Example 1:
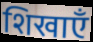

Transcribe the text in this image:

शिखाएँ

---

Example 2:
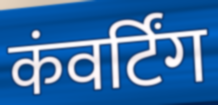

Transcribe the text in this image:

कंवर्टिंग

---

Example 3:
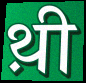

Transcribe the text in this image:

थ़ी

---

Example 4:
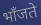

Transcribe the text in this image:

भाँजते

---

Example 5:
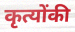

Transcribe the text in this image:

कृत्योंकी